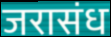
जरासंध